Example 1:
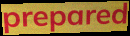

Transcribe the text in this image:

prepared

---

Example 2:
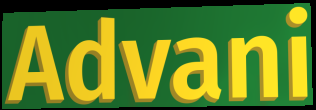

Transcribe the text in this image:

Advani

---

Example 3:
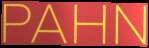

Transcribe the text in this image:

PAHN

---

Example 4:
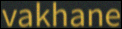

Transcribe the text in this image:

vakhane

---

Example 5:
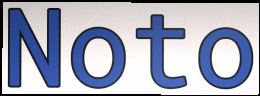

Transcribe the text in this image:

Noto